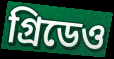
গ্রিডেও